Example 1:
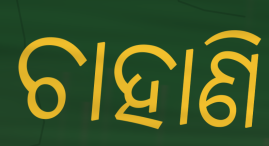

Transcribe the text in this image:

ଚାହାଣି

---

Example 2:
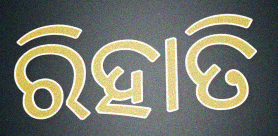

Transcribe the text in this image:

ରିହାତି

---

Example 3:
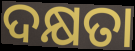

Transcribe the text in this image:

ଦକ୍ଷତା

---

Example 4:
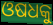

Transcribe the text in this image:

ଓଷଧକୁ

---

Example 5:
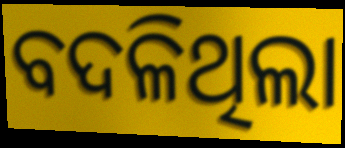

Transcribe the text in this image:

ବଦଳିଥିଲା